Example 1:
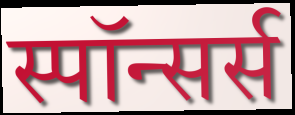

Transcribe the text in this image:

स्पॉन्सर्स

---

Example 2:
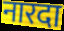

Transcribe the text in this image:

नारदा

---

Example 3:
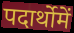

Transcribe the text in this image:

पदार्थोमें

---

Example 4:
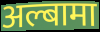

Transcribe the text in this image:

अल्बामा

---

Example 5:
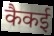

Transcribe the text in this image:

कैकई